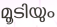
മൂടിയും